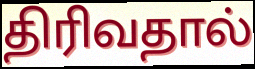
திரிவதால்